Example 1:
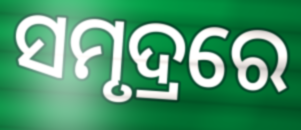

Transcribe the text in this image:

ସମୃଦ୍ରରେ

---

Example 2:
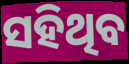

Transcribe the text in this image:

ସହିଥିବ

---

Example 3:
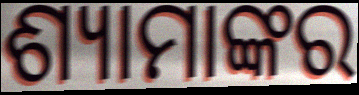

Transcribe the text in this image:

ଶ୍ୟାମାଙ୍କର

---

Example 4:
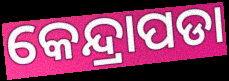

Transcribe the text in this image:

କେନ୍ଦ୍ରାପଡା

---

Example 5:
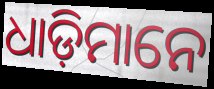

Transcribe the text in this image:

ଧାଡ଼ିମାନେ